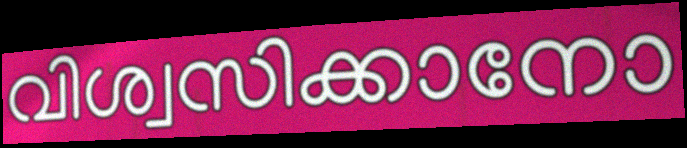
വിശ്വസിക്കാനോ